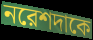
নরেশদাকে